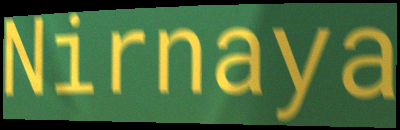
Nirnaya